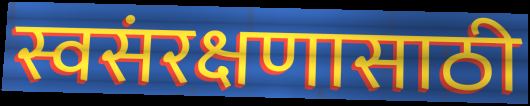
स्वसंरक्षणासाठी